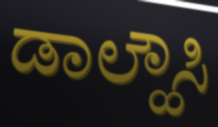
ಡಾಲ್ಹೌಸಿ